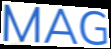
MAG